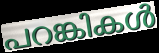
പറങ്കികൾ